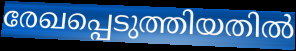
രേഖപ്പെടുത്തിയതിൽ